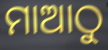
ମାଆଠୁ